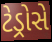
ટેડ્રોસે